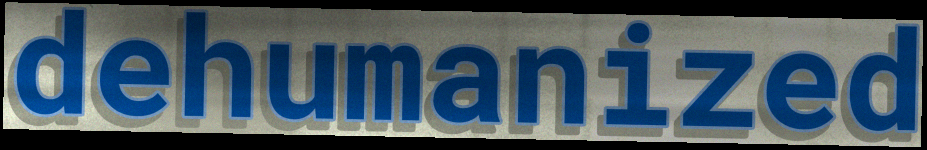
dehumanized